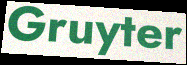
Gruyter